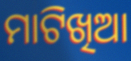
ମାଟିଖିଆ